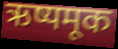
ऋष्यमूक